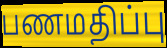
பணமதிப்பு